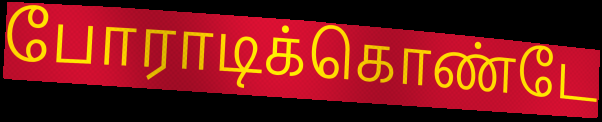
போராடிக்கொண்டே